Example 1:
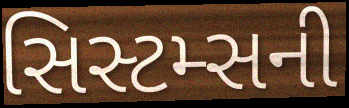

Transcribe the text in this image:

સિસ્ટમ્સની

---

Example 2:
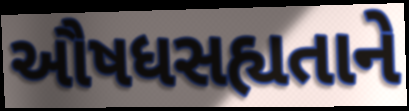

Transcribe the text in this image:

ઔષધસહ્યતાને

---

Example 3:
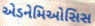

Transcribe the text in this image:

એડનેમિઓસિસ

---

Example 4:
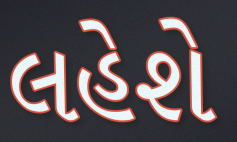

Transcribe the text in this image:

લહેશે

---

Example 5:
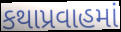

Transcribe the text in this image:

કથાપ્રવાહમાં